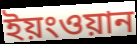
ইয়ংওয়ান